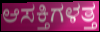
ಆಸಕ್ತಿಗಳತ್ತ